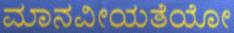
ಮಾನವೀಯತೆಯೋ